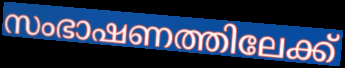
സംഭാഷണത്തിലേക്ക്